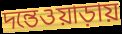
দন্তেওয়াড়ায়